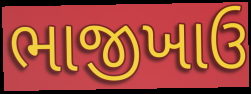
ભાજીખાઉ